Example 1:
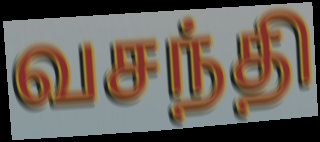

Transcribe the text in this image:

வசந்தி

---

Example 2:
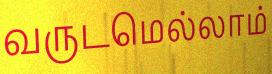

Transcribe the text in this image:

வருடமெல்லாம்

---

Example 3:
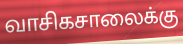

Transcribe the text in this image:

வாசிகசாலைக்கு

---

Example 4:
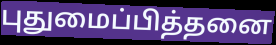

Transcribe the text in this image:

புதுமைப்பித்தனை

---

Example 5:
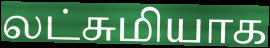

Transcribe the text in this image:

லட்சுமியாக